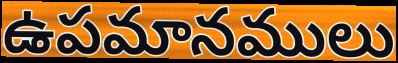
ఉపమానములు